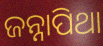
ଜନ୍ନାପିଥା